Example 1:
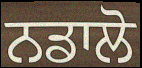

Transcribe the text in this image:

ਨਡਾਲੋ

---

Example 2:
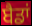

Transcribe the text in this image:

ਬੈਡਾਂ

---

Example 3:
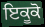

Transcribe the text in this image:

ਇਕੂਕੋ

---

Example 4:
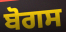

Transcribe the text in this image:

ਬੋਗਸ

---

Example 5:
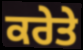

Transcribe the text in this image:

ਕਰੇਤੇ